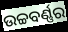
ଉଚ୍ଚବର୍ଣ୍ଣର